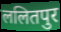
ललितपुर